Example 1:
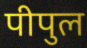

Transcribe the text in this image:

पीपुल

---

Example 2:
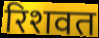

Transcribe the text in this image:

रिशवत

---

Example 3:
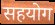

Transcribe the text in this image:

सहयोग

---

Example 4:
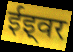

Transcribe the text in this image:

ईइ्वर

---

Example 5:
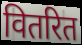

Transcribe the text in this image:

वितरित